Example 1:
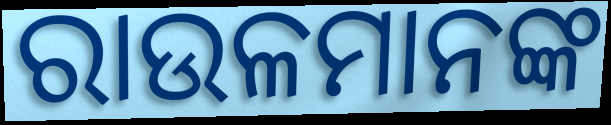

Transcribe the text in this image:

ରାଉଳମାନଙ୍କ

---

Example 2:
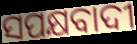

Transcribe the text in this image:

ସପକ୍ଷବାଦୀ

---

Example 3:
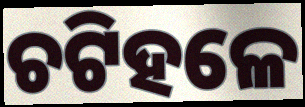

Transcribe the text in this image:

ଚଟିହଳେ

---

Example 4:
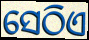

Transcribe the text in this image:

ସେଠିଏ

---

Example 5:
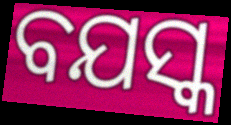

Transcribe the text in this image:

ବଯସ୍କ